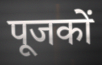
पूजकों